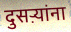
दुसऱ्‍यांना